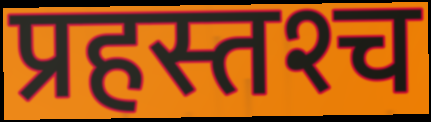
प्रहस्तश्च